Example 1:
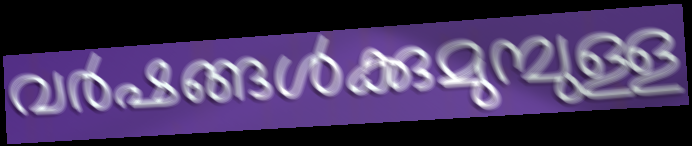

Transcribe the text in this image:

വർഷങ്ങൾക്കുമുമ്പുള്ള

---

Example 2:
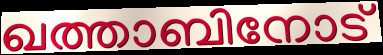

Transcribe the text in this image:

ഖത്താബിനോട്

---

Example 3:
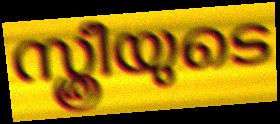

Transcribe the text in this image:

സ്ത്രീയുടെ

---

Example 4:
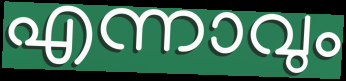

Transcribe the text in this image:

എന്നാവും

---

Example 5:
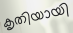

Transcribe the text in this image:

കൃതിയായി